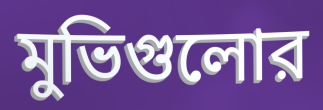
মুভিগুলোর